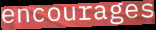
encourages